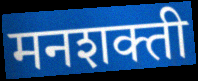
मनशक्ती